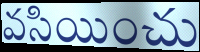
వసియించు